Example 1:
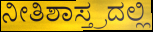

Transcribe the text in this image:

ನೀತಿಶಾಸ್ತ್ರದಲ್ಲಿ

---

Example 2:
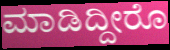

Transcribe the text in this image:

ಮಾಡಿದ್ದೀರೊ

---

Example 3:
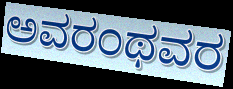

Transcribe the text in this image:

ಅವರಂಥವರ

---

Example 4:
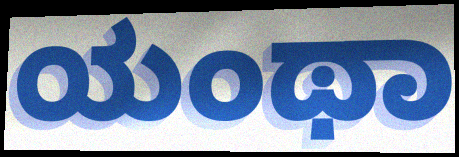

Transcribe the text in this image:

ಯಂಥಾ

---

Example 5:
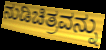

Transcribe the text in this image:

ನುಡಿಚಿತ್ರವನ್ನು